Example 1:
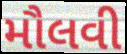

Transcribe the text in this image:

મૌલવી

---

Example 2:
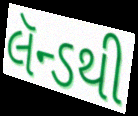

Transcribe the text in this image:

લૅન્ડથી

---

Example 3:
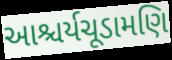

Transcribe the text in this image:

આશ્ચર્યચૂડામણિ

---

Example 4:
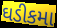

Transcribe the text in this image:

ઘડીકમા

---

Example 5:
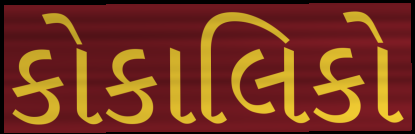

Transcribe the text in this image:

કોકાલિકો